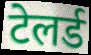
टेलर्ड